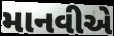
માનવીએ